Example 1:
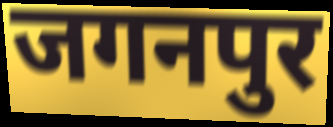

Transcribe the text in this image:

जगनपुर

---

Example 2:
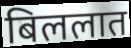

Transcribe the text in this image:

बिललात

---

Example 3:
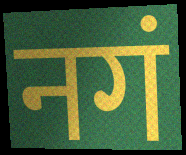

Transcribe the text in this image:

नगं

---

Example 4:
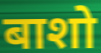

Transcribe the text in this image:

बाशो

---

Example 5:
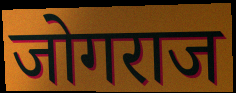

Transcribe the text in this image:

जोगराज